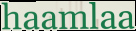
haamlaa